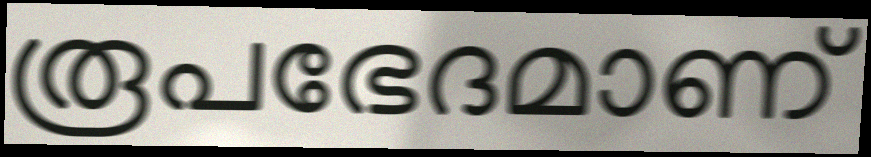
രൂപഭേദമാണ്